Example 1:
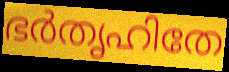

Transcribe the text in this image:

ഭർതൃഹിതേ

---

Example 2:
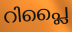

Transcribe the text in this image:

റിപ്ലൈ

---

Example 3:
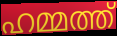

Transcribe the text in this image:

ഹമ്മത്ത്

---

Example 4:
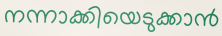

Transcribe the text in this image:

നന്നാക്കിയെടുക്കാൻ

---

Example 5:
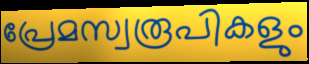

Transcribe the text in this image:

പ്രേമസ്വരൂപികളും